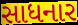
સાધનાર